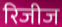
रिजीज